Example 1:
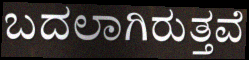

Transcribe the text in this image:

ಬದಲಾಗಿರುತ್ತವೆ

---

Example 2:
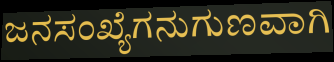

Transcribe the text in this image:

ಜನಸಂಖ್ಯೆಗನುಗುಣವಾಗಿ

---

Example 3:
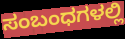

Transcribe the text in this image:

ಸಂಬಂಧಗಳಲ್ಲಿ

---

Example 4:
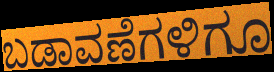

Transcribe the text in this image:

ಬಡಾವಣೆಗಳಿಗೂ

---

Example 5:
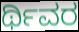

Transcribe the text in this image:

ರ್ಥಿವರ